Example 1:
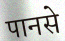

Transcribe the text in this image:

पानसे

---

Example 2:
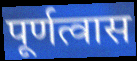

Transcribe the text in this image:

पूर्णत्वास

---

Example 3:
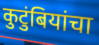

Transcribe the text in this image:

कुटुंबियांचा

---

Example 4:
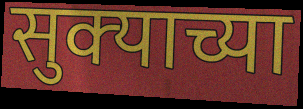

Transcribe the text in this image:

सुक्‍याच्या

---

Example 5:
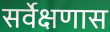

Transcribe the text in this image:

सर्वेक्षणास